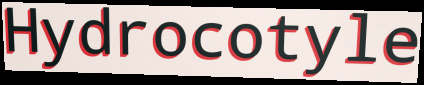
Hydrocotyle